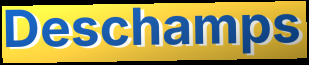
Deschamps